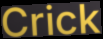
Crick